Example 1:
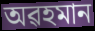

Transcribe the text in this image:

অৱহমান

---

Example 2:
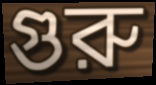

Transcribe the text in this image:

গুৰু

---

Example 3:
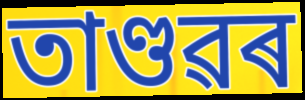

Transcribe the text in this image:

তাণ্ডৱৰ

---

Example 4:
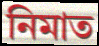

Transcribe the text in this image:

নিমাত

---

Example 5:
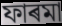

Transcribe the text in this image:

ফাৰমা